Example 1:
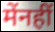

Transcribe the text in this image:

मेंनहीं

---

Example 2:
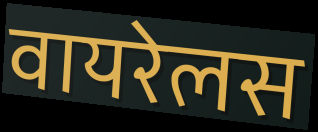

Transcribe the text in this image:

वायरेलस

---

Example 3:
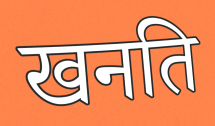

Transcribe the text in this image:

खनति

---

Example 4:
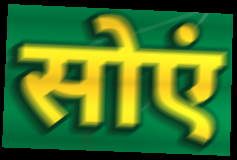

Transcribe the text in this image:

सोएं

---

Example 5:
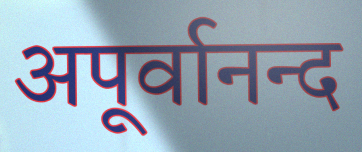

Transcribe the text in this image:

अपूर्वानन्द